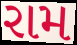
રામ